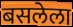
बसलेला